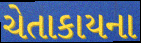
ચેતાકાયના